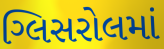
ગ્લિસરોલમાં